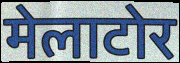
मेलाटोर